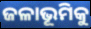
ଜଳାଭୂମିକୁ